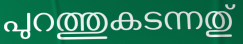
പുറത്തുകടന്നതു്